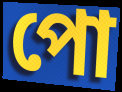
পো